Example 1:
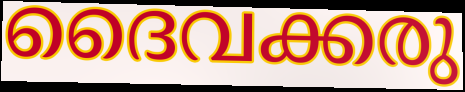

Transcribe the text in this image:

ദൈവക്കരു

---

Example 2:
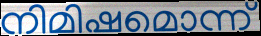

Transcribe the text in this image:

നിമിഷമൊന്ന്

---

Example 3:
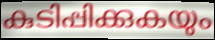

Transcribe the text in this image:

കുടിപ്പിക്കുകയും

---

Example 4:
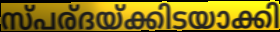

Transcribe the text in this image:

സ്പര്ദയ്ക്കിടയാക്കി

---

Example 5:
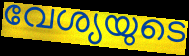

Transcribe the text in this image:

വേശ്യയുടെ